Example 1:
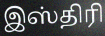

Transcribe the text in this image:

இஸ்திரி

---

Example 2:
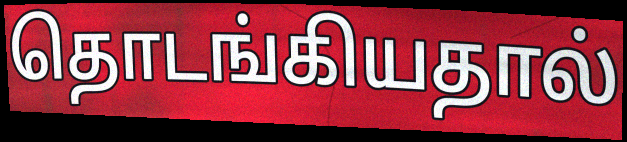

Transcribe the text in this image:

தொடங்கியதால்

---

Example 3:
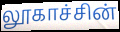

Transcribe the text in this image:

லூகாச்சின்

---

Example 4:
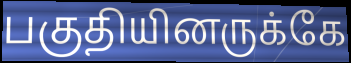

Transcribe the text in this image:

பகுதியினருக்கே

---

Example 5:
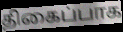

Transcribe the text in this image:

திகைப்பாக